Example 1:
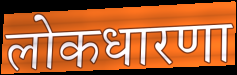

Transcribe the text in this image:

लोकधारणा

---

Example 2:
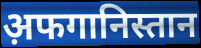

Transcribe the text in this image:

अ़फगानिस्तान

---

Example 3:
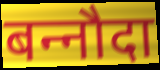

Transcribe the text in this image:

बन्नौदा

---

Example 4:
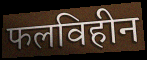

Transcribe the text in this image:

फलविहीन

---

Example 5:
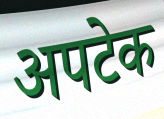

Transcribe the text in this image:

अपटेक